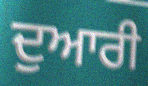
ਦੁਆਰੀ